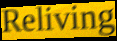
Reliving